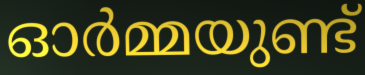
ഓർമ്മയുണ്ട്